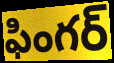
ఫింగర్